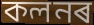
কলনৰ